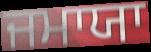
ਜਮਾਯਾ